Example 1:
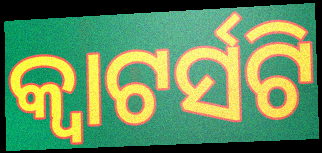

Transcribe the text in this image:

କ୍ୱାଟର୍ସଟି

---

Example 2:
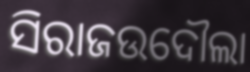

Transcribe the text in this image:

ସିରାଜଉଦୌଲା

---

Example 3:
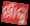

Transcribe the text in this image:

ଖାଁକୁ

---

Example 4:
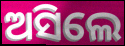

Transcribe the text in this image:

ଅସିଲେ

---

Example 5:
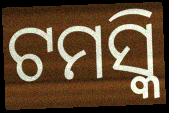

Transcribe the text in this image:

ଟମସ୍କି